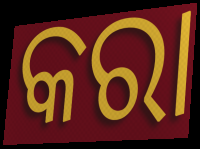
କରା